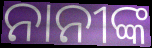
ନାନୀଙ୍କ